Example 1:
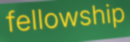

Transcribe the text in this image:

fellowship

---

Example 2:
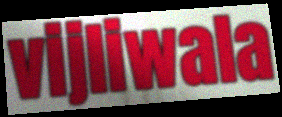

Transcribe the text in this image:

vijliwala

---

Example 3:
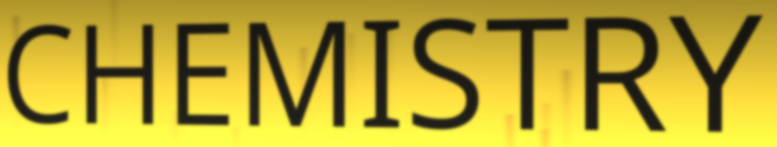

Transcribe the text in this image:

CHEMISTRY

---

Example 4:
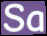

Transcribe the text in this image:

Sa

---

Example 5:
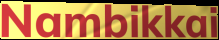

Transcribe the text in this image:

Nambikkai